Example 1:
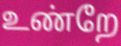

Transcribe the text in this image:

உண்றே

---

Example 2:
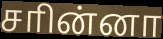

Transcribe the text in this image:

சரின்னா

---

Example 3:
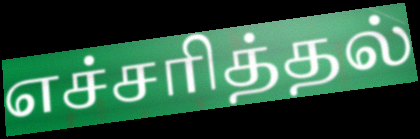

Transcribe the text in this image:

எச்சரித்தல்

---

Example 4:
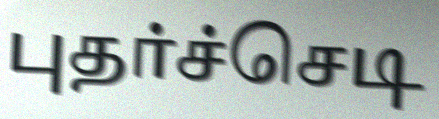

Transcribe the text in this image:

புதர்ச்செடி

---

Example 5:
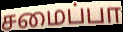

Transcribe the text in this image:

சமைப்பா